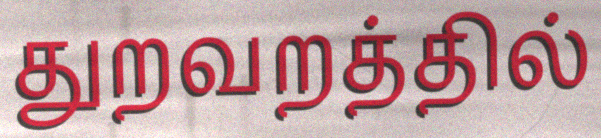
துறவறத்தில்